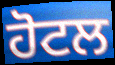
ਹੋਟਲ